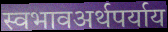
स्वभावअर्थपर्याय